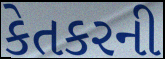
કેતકરની